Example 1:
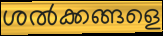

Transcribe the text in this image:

ശൽക്കങ്ങളെ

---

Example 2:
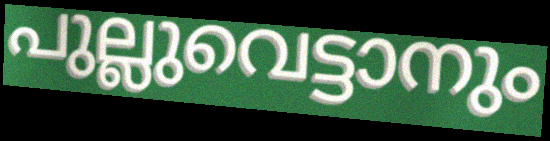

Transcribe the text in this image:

പുല്ലുവെട്ടാനും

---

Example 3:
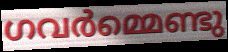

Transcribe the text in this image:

ഗവർമ്മെണ്ടു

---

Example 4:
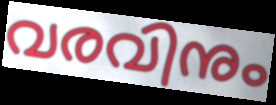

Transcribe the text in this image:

വരവിനും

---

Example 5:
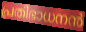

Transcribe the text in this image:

പ്രതിഭാധനൻ